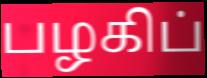
பழகிப்